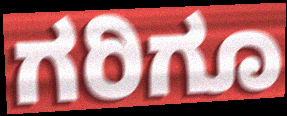
ಗರಿಗೂ